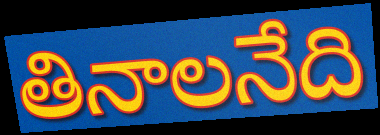
తినాలనేది